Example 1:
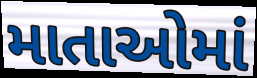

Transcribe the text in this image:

માતાઓમાં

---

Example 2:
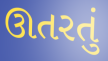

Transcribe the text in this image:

ઊતરતું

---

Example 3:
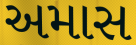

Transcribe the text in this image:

અમાસ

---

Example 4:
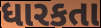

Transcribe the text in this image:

ધારકતા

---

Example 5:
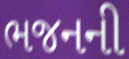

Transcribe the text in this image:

ભજનની